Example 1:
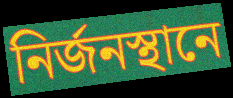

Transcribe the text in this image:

নির্জনস্থানে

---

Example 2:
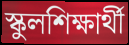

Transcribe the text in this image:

স্কুলশিক্ষার্থী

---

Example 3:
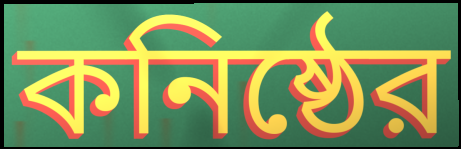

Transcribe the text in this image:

কনিষ্ঠের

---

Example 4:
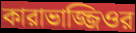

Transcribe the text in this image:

কারাভাজ্জিওর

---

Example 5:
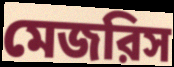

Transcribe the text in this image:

মেজরিস